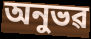
অনুভৱ